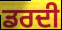
ਡਰਦੀ